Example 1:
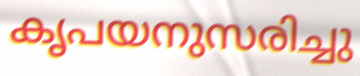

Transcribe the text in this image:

കൃപയനുസരിച്ചു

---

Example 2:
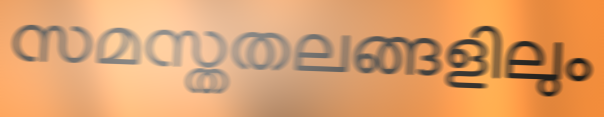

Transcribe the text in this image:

സമസ്തതലങ്ങളിലും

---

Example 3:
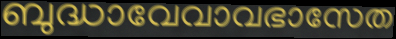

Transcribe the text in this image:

ബുദ്ധാവേവാവഭാസേത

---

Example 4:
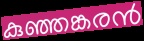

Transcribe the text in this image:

കുഞ്ഞങ്കരൻ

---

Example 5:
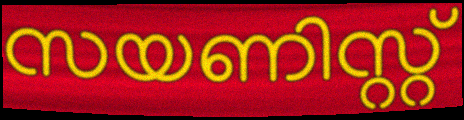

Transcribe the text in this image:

സയണിസ്റ്റ്